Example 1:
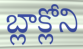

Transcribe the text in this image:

బ్లాక్లోని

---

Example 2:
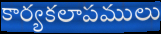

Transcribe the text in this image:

కార్యకలాపములు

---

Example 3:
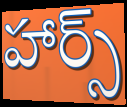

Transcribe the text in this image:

హార్స్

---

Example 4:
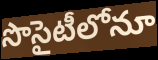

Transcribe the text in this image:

సొసైటీలోనూ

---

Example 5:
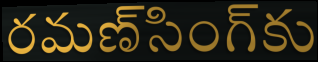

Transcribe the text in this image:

రమణ్‌సింగ్‌కు